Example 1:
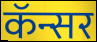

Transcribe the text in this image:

कॅन्सर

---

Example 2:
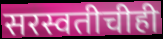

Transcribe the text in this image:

सरस्वतीचीही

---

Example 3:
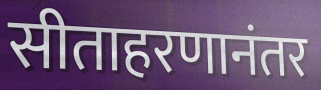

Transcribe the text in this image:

सीताहरणानंतर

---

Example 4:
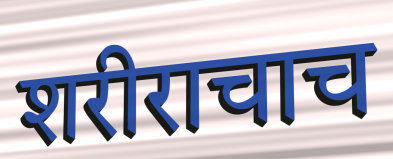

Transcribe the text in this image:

शरीराचाच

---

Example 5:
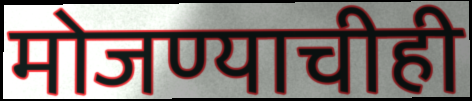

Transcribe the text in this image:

मोजण्याचीही